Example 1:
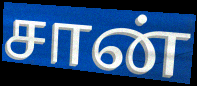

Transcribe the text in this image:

சான்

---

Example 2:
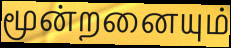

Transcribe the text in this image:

மூன்றனையும்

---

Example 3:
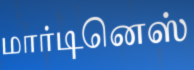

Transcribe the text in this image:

மார்டினெஸ்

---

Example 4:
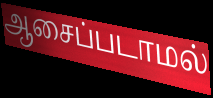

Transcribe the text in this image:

ஆசைப்படாமல்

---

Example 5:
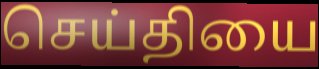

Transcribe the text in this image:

செய்தியை